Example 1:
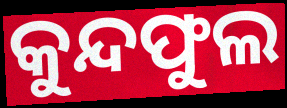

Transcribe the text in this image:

କୁନ୍ଦଫୁଲ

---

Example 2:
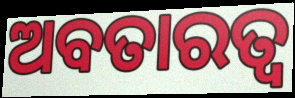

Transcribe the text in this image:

ଅବତାରତ୍ୱ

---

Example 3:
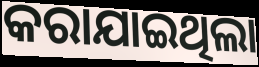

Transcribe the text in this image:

କରାଯାଇଥିଲା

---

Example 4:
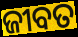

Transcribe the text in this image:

ଜୀବତ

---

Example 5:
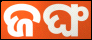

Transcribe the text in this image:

ଜଙ୍ଘ